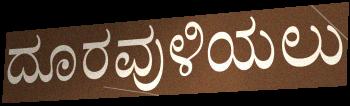
ದೂರವುಳಿಯಲು